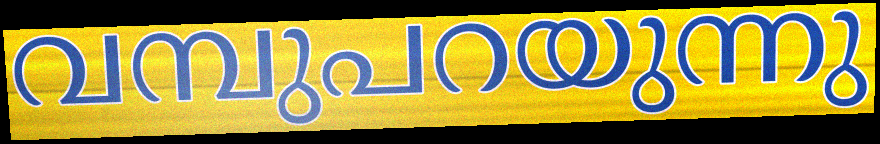
വമ്പുപറയുന്നു